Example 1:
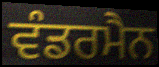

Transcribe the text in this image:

ਵੰਡਰਮੈਨ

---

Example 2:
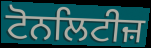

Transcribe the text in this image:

ਟੋਨਲਿਟੀਜ਼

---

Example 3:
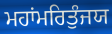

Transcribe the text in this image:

ਮਹਾਂਮਰਿਤੁੰਜਯ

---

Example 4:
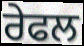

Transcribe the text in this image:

ਰੇਫਲ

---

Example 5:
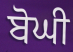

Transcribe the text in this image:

ਬੋਘੀ